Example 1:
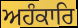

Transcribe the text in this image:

ਅਹੰਕਾਰਿ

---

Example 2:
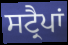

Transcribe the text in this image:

ਸਟ੍ਰੈਪਾਂ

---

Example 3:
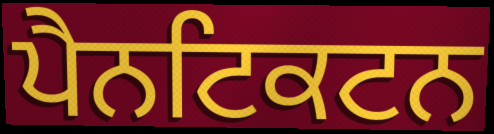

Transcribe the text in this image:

ਪੈਨਟਿਕਟਨ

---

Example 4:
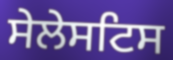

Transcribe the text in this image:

ਸੇਲੇਸਟਿਸ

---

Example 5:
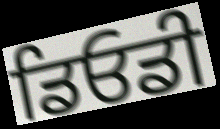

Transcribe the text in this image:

ਡਿਓਡੀ